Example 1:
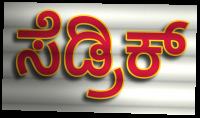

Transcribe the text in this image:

ಸೆಡ್ರಿಕ್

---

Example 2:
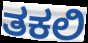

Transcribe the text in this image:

ತಕಲಿ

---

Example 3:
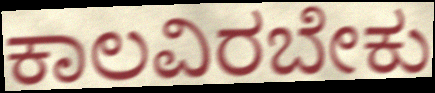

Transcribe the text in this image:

ಕಾಲವಿರಬೇಕು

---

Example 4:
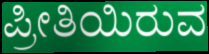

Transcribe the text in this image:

ಪ್ರೀತಿಯಿರುವ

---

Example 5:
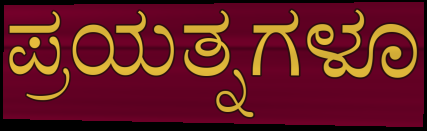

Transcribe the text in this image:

ಪ್ರಯತ್ನಗಳೂ